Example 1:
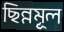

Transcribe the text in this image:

ছিন্নমূল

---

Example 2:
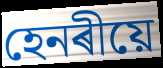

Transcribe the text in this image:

হেনৰীয়ে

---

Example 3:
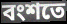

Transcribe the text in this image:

বংশতে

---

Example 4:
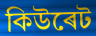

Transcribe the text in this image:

কিউৰেট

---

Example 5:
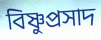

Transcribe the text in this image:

বিষ্ণুপ্ৰসাদ